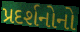
પ્રદર્શનોનો